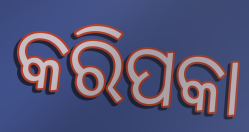
କରିପକା